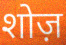
शोज़